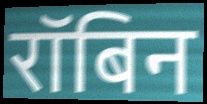
रॉबिन